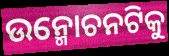
ଉନ୍ମୋଚନଟିକୁ